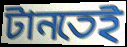
টানতেই